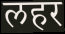
लहर